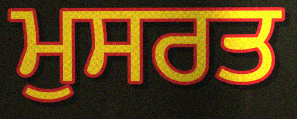
ਮੁਸਰਤ